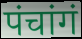
पंचांगं